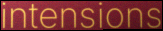
intensions